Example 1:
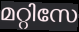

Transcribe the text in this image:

മറ്റിസേ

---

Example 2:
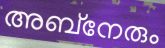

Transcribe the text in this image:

അബ്നേരും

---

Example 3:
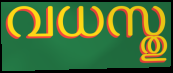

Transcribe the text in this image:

വധസ്തു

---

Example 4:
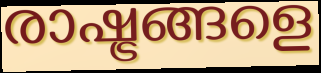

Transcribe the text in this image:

രാഷ്ട്രങ്ങളെ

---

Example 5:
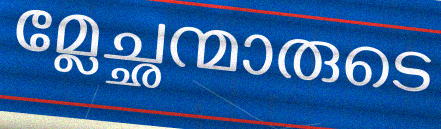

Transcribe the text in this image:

മ്ലേച്ഛന്മാരുടെ